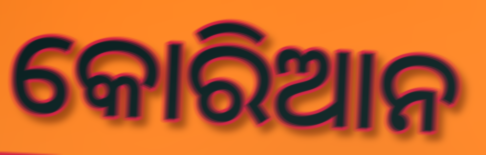
କୋରିଆନ